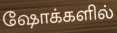
ஷோக்களில்